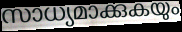
സാധ്യമാക്കുകയും